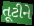
તૂટીને